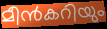
മീൻകറിയും